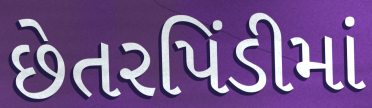
છેતરપિંડીમાં